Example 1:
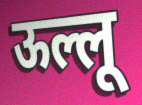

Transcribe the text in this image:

ऊल्लू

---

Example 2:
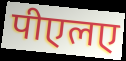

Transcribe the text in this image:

पीएलए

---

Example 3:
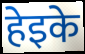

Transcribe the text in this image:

हेइके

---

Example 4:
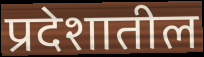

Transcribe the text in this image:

प्रदेशातील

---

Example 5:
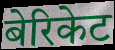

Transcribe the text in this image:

बेरिकेट